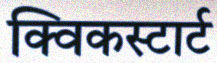
क्विकस्टार्ट